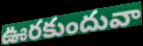
ఊరకుందువా